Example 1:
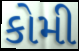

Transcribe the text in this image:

કોમી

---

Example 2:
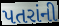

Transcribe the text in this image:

પતરાંની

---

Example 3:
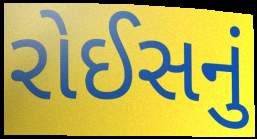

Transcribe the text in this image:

રોઈસનું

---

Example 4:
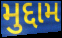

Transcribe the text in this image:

મુદ્દામ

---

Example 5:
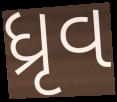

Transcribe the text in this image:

ધ્રૃવ